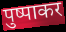
पुष्पाकर